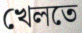
খেলতে